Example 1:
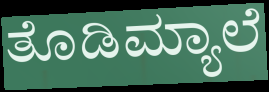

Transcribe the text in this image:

ತೊಡಿಮ್ಯಾಲೆ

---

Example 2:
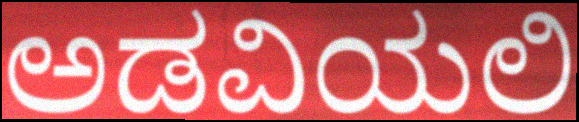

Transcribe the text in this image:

ಅಡವಿಯಲಿ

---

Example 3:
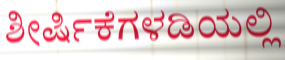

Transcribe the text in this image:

ಶೀರ್ಷಿಕೆಗಳಡಿಯಲ್ಲಿ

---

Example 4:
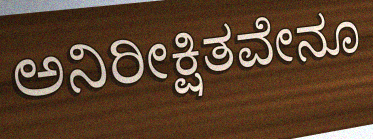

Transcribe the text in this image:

ಅನಿರೀಕ್ಷಿತವೇನೂ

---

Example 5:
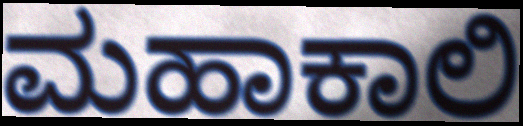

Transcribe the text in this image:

ಮಹಾಕಾಲಿ